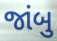
જાંબુ